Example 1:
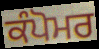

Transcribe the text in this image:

ਕੰਪੋਮਰ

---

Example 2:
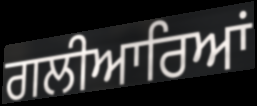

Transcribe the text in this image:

ਗਲੀਆਰਿਆਂ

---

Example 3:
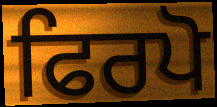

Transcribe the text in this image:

ਫਿਰਪੋ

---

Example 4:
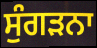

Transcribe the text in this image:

ਸੁੰਗੜਨਾ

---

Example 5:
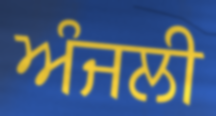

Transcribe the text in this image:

ਅੰਜਲੀ